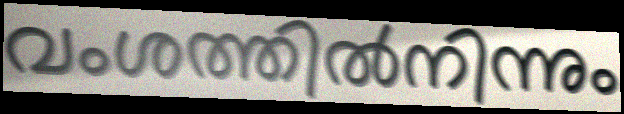
വംശത്തിൽനിന്നും